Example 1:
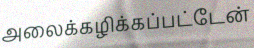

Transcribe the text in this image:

அலைக்கழிக்கப்பட்டேன்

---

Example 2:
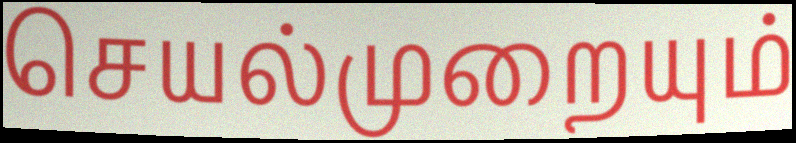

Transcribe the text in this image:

செயல்முறையும்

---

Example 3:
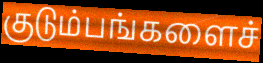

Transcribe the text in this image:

குடும்பங்களைச்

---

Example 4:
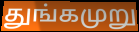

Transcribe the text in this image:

துங்கமுறு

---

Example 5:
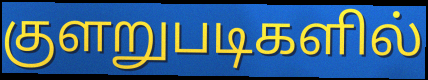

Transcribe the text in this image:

குளறுபடிகளில்